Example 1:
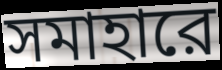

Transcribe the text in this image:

সমাহারে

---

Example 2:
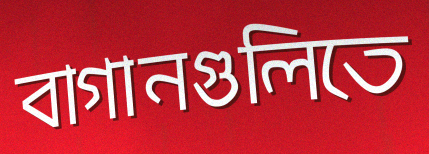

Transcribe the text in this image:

বাগানগুলিতে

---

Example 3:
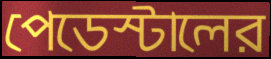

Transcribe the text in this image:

পেডেস্টালের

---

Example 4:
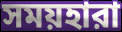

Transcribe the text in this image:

সময়হারা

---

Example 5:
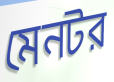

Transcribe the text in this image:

মেনটর